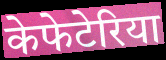
केफेटेरिया